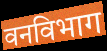
वनविभाग